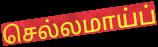
செல்லமாய்ப்